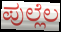
ಪುಲ್ಲೆಲ